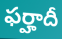
ఫర్హాదీ